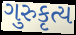
ગુરુકૃત્ય